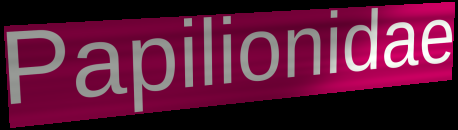
Papilionidae